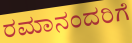
ರಮಾನಂದರಿಗೆ